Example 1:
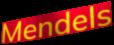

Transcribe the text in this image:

Mendels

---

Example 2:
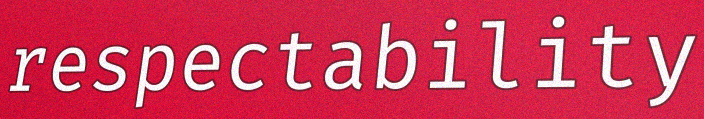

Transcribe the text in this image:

respectability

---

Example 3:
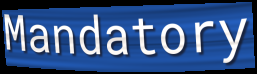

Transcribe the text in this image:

Mandatory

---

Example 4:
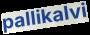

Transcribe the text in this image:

pallikalvi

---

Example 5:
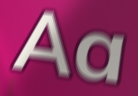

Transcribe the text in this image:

Aa